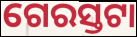
ଗେରସ୍ତଟା